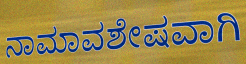
ನಾಮಾವಶೇಷವಾಗಿ